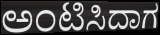
ಅಂಟಿಸಿದಾಗ